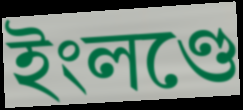
ইংলণ্ডে